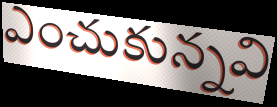
ఎంచుకున్నవి